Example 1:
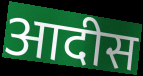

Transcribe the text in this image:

आदीस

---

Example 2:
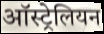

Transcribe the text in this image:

ऑस्ट्रेलियन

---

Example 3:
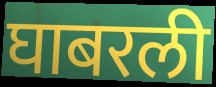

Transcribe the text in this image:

घाबरली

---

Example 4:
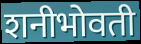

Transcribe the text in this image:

शनीभोवती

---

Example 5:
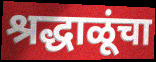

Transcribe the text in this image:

श्रद्धाळूंचा